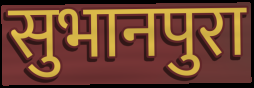
सुभानपुरा